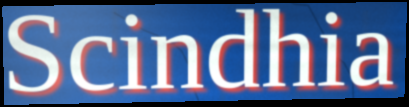
Scindhia